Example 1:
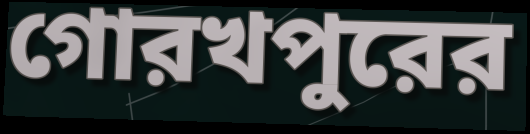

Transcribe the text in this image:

গোরখপুরের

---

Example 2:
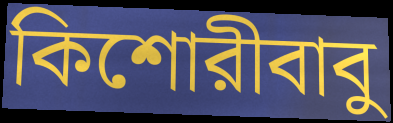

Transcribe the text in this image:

কিশোরীবাবু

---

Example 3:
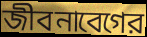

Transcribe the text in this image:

জীবনাবেগের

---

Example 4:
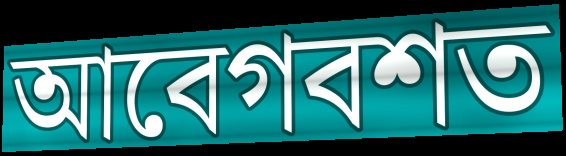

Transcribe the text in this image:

আবেগবশত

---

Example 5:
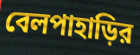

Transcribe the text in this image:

বেলপাহাড়ির